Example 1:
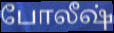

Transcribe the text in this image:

போலீஷ்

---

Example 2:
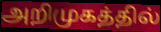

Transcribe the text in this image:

அறிமுகத்தில்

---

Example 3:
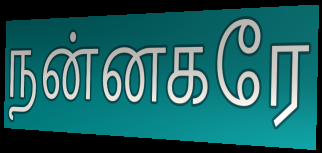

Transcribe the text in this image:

நன்னகரே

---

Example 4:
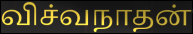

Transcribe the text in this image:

விச்வநாதன்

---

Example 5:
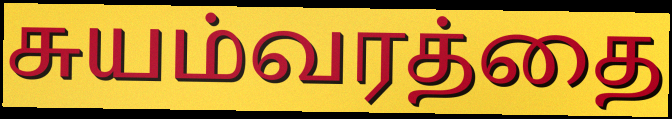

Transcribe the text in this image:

சுயம்வரத்தை